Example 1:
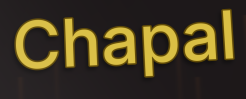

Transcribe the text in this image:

Chapal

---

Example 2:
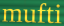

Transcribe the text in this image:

mufti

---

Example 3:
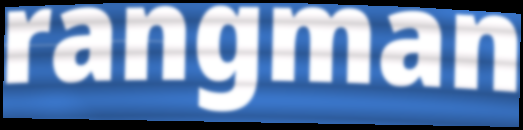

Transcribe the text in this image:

rangman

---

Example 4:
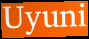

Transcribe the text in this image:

Uyuni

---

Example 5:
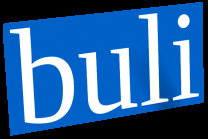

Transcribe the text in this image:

buli